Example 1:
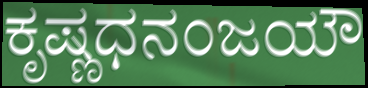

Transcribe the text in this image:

ಕೃಷ್ಣಧನಂಜಯೌ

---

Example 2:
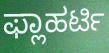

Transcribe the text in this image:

ಫ್ಲಾಹರ್ಟಿ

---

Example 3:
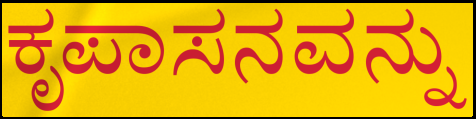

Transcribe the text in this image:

ಕೃಪಾಸನವನ್ನು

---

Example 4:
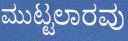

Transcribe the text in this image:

ಮುಟ್ಟಲಾರವು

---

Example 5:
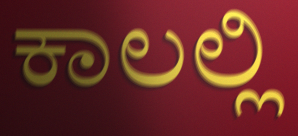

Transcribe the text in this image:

ಕಾಲಲ್ಲಿ